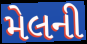
મેલની